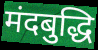
मंदबुद्धि